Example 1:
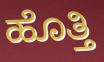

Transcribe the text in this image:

ಹೊತ್ತಿ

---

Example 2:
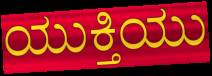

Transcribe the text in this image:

ಯುಕ್ತಿಯು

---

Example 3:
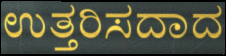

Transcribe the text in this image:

ಉತ್ತರಿಸದಾದ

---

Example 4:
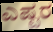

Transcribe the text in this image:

ಎಷ್ಟರ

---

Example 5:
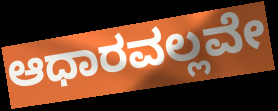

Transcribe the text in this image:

ಆಧಾರವಲ್ಲವೇ